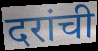
दरांची